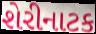
શેરીનાટક